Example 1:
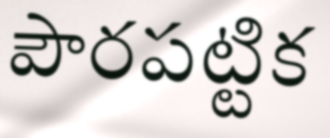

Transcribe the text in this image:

పౌరపట్టిక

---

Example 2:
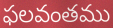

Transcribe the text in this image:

ఫలవంతము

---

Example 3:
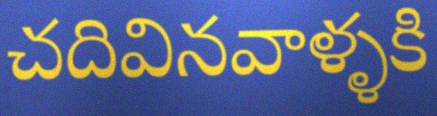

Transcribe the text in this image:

చదివినవాళ్ళకి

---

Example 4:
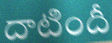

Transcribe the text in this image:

దాటిందీ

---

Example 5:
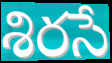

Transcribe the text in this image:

శిరసే